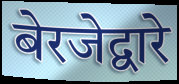
बेरजेद्वारे